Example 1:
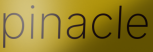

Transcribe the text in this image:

pinacle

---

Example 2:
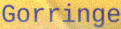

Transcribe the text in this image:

Gorringe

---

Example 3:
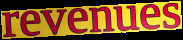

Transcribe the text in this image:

revenues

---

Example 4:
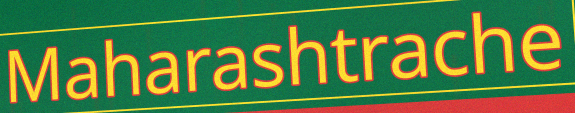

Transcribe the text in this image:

Maharashtrache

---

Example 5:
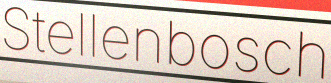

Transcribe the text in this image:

Stellenbosch